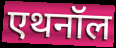
एथनॉल